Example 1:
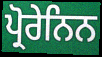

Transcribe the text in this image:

ਪ੍ਰੋਰੇਨਿਨ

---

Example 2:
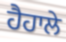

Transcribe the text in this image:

ਹੈਹਾਲੇ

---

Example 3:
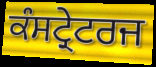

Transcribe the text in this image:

ਕੰਸਟ੍ਰੇਟਰਜ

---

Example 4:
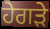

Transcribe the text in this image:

ਹੇਗੜੇ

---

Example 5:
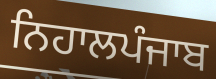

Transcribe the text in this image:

ਨਿਹਾਲਪੰਜਾਬ